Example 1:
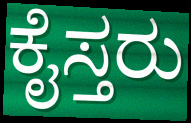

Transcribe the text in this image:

ಕೈಸ್ತರು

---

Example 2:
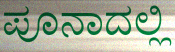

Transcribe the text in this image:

ಪೂನಾದಲ್ಲಿ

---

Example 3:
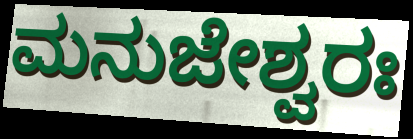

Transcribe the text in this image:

ಮನುಜೇಶ್ವರಃ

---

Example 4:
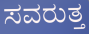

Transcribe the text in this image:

ಸವರುತ್ತ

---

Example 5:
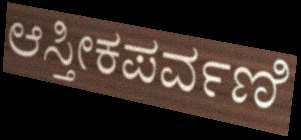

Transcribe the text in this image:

ಆಸ್ತೀಕಪರ್ವಣಿ